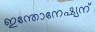
ഇന്തോനേഷ്യന്